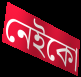
নেইকো